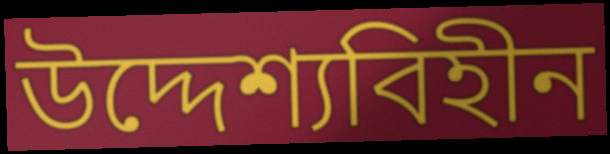
উদ্দেশ্যবিহীন